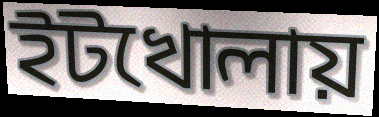
ইটখোলায়